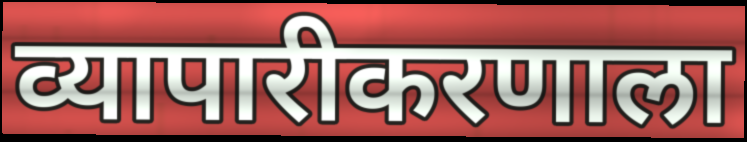
व्यापारीकरणाला